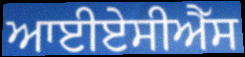
ਆਈਏਸੀਐੱਸ